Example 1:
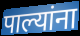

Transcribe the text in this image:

पाल्यांना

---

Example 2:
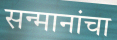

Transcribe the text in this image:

सन्मानांचा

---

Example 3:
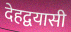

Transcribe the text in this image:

देहद्वयासी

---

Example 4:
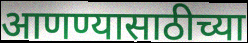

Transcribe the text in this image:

आणण्यासाठीच्या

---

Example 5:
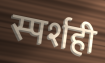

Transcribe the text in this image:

स्पर्शही